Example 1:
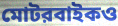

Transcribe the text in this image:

মোটরবাইকও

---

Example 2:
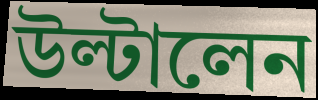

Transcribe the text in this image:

উল্টালেন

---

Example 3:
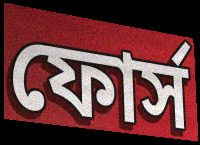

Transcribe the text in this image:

ফোর্স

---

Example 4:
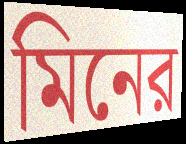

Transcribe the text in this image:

মিনের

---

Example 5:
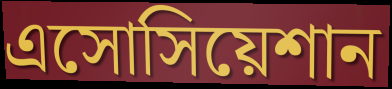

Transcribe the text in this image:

এসোসিয়েশান